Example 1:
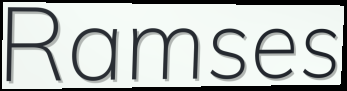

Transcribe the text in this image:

Ramses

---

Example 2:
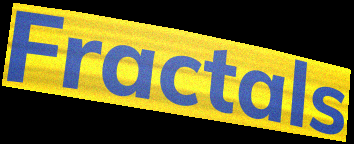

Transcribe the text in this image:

Fractals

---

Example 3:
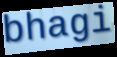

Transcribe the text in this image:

bhagi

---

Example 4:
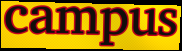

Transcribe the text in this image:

campus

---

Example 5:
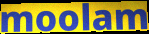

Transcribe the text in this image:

moolam